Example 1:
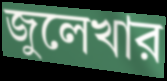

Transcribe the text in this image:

জুলেখার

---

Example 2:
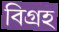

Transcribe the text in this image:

বিগ্রহ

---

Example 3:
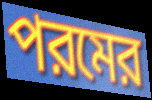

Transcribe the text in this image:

পরমের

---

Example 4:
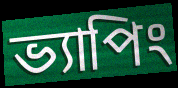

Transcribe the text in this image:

ভ্যাপিং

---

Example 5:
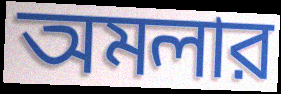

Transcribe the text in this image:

অমলার